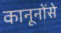
कानूनोंसे